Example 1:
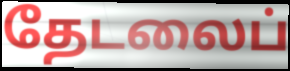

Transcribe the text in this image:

தேடலைப்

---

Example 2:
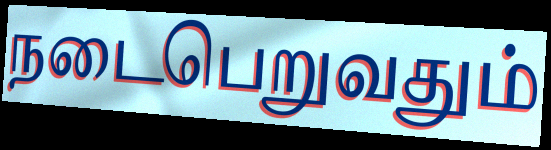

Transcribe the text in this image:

நடைபெறுவதும்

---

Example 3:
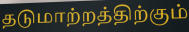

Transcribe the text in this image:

தடுமாற்றத்திற்கும்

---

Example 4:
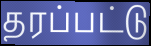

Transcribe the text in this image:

தரப்பட்டு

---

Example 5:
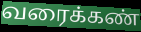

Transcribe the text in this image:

வரைக்கண்